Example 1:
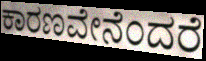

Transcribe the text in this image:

ಕಾರಣವೇನೆಂದರೆ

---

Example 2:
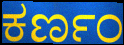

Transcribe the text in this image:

ಕರ್ಣಂ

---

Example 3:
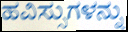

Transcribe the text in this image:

ಹವಿಸ್ಸುಗಳನ್ನು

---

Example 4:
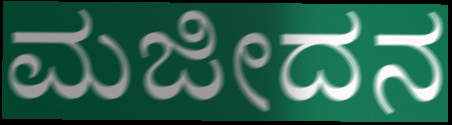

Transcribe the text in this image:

ಮಜೀದನ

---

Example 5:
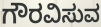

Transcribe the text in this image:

ಗೌರವಿಸುವ